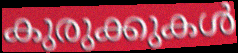
കുരുക്കുകൾ